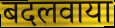
बदलवाया